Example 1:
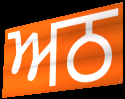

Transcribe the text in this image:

ਅਠ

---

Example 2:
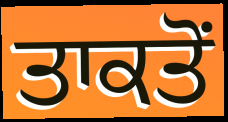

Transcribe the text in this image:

ਤਾਕਤੋਂ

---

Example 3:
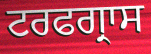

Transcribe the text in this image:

ਟਰਫਗ੍ਰਾਸ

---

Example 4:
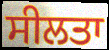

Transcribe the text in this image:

ਸੀਲਤਾ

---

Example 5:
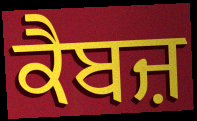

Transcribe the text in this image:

ਕੈਬਜ਼